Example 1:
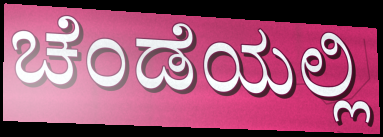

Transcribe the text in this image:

ಚೆಂಡೆಯಲ್ಲಿ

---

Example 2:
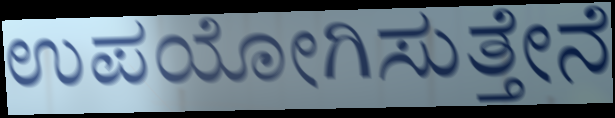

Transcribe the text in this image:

ಉಪಯೋಗಿಸುತ್ತೇನೆ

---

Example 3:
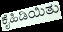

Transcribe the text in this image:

ಕೈಹಿಡಿಯಿತು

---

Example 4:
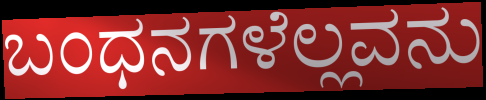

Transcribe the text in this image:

ಬಂಧನಗಳೆಲ್ಲವನು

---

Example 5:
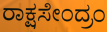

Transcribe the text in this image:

ರಾಕ್ಷಸೇಂದ್ರಂ